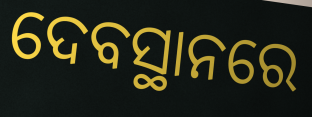
ଦେବସ୍ଥାନରେ